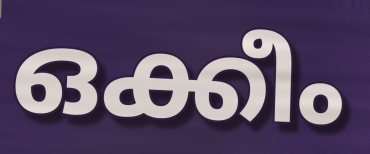
ഒക്കീം